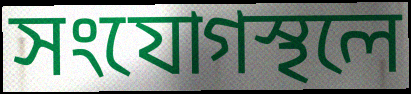
সংযোগস্থলে